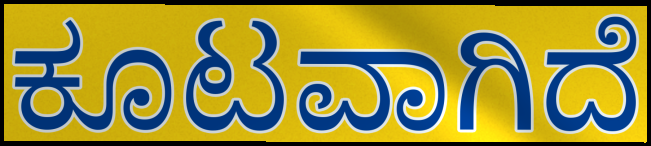
ಕೂಟವಾಗಿದೆ